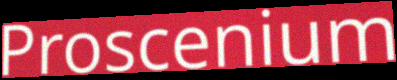
Proscenium